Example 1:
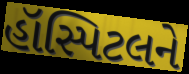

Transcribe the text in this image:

હૉસ્પિટલને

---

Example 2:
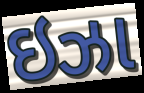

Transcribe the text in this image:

ઇઝા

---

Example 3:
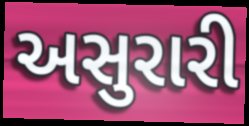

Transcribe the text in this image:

અસુરારી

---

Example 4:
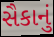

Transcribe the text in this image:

સૈકાનું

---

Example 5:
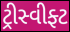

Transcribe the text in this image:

ટ્રીસ્વીફ્ટ